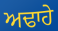
ਅਢਾਹੇ